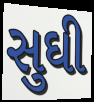
સુઘી